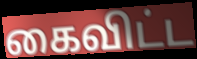
கைவிட்ட